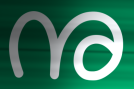
നു